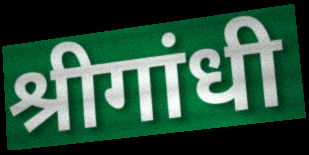
श्रीगांधी